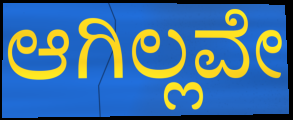
ಆಗಿಲ್ಲವೇ